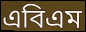
এবিএম